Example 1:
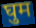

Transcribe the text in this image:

घुम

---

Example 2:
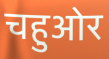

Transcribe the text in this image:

चहुओर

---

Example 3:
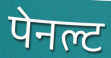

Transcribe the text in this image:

पेनल्ट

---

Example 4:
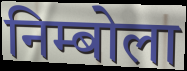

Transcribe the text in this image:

निम्बोला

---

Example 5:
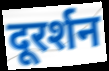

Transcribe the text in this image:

दूरर्शन